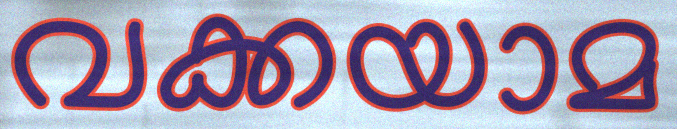
വക്കയാമ